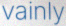
vainly